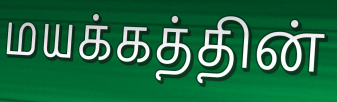
மயக்கத்தின்